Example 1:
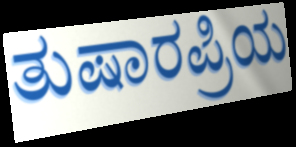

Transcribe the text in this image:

ತುಷಾರಪ್ರಿಯ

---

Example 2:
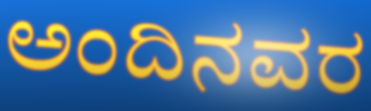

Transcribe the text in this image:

ಅಂದಿನವರ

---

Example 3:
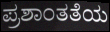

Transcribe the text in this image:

ಪ್ರಶಾಂತತೆಯ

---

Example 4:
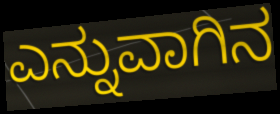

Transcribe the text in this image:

ಎನ್ನುವಾಗಿನ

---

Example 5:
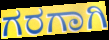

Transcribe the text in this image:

ಗರಗಾಗಿ